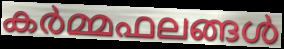
കർമ്മഫലങ്ങൾ